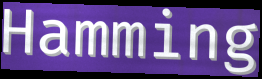
Hamming